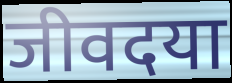
जीवदया